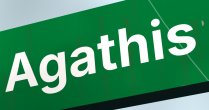
Agathis